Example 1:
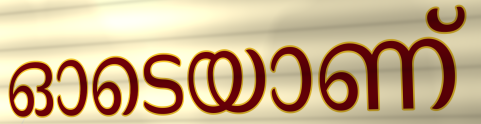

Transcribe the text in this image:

ഓടെയാണ്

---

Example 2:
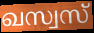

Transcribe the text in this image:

ഖസ്വസ്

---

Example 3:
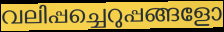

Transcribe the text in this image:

വലിപ്പച്ചെറുപ്പങ്ങളോ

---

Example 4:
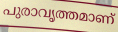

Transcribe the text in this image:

പുരാവൃത്തമാണ്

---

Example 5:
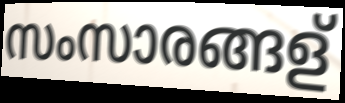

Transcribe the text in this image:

സംസാരങ്ങള്